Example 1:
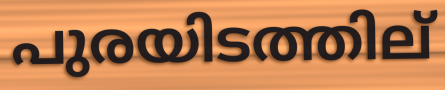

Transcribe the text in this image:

പുരയിടത്തില്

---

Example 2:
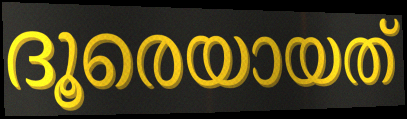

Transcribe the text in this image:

ദൂരെയായത്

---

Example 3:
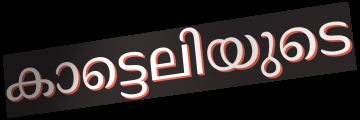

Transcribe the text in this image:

കാട്ടെലിയുടെ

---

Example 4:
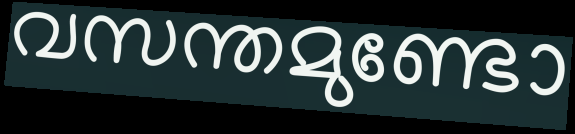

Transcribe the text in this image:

വസന്തമുണ്ടോ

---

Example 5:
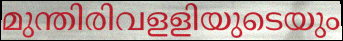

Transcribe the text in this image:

മുന്തിരിവളളിയുടെയും